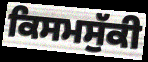
ਕਿਸਮਸੁੱਕੀ